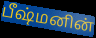
பீஷ்மனின்